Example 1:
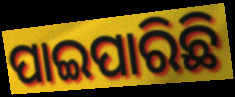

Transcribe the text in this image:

ପାଇପାରିଛି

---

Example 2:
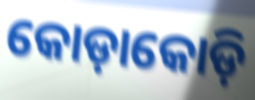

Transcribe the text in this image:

କୋଡ଼ାକୋଡ଼ି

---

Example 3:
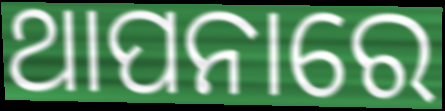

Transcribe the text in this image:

ଥାପନାରେ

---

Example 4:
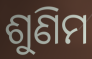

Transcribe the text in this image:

ଶୁଣିମ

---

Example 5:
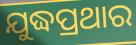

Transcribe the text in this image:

ଯୁଦ୍ଧପ୍ରଥାର